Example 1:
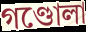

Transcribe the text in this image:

গণ্ডোলা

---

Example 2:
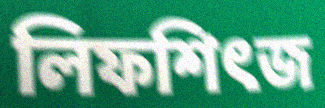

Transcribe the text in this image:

লিফশিৎজ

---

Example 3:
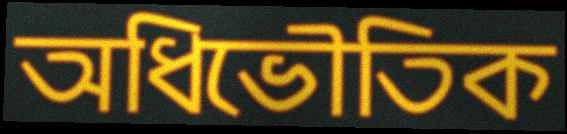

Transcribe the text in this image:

অধিভৌতিক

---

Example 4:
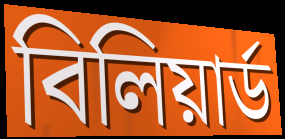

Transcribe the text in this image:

বিলিয়ার্ড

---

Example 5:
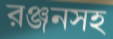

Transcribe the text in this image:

রঞ্জনসহ